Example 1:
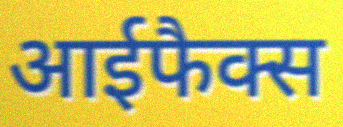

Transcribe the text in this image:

आईफैक्स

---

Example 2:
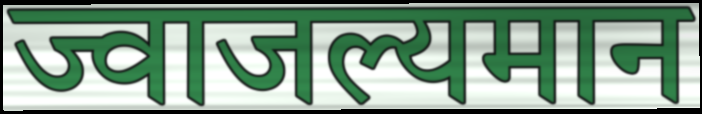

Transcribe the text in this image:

ज्वाजल्यमान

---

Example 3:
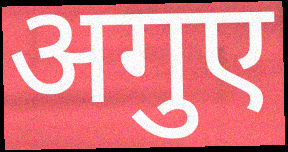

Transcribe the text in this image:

अगुए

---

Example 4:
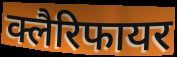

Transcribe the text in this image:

क्लैरिफायर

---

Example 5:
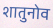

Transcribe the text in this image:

शातुनोव